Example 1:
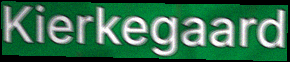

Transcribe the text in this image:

Kierkegaard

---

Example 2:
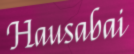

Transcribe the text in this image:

Hausabai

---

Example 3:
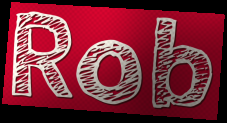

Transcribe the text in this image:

Rob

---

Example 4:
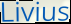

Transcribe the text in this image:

Livius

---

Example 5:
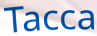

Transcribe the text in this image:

Tacca